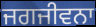
ਜਗਜੀਵਨਾ